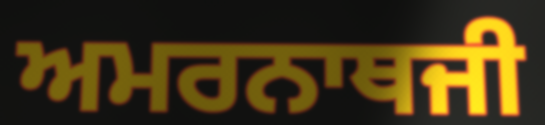
ਅਮਰਨਾਥਜੀ